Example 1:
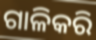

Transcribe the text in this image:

ଗାଳିକରି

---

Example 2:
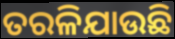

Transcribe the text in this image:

ତରଳିଯାଉଛି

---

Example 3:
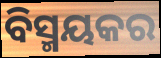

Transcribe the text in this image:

ବିସ୍ମୟକର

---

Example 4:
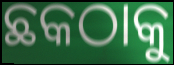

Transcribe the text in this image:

ଛକଠାକୁ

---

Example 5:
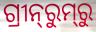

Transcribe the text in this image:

ଗ୍ରୀନ୍‌ରୁମ୍‌ରୁ